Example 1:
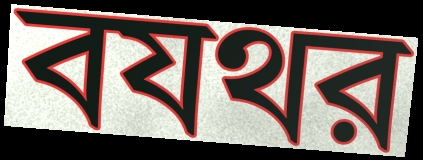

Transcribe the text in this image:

বযথর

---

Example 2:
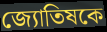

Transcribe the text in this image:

জ্যোতিষকে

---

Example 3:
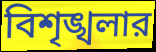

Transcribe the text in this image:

বিশৃঙ্খলার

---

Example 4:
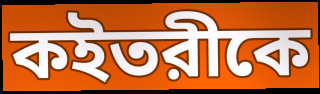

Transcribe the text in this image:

কইতরীকে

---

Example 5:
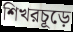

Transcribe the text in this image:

শিখরচূড়ে